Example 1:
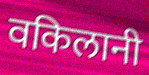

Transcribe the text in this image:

वकिलानी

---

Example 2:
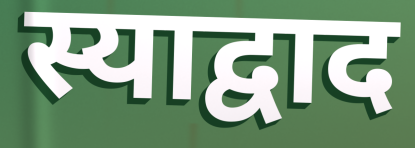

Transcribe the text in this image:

स्याद्वाद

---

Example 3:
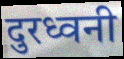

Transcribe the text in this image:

दुरध्वनी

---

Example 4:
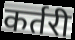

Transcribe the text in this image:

कर्तरी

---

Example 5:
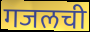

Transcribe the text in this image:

गजलची